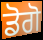
ਡੋਗੋ